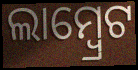
ଲାମ୍ୱ୍ରେଟ